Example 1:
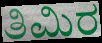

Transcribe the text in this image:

ತಿಮಿರ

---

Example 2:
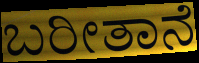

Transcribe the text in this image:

ಬರೀತಾನೆ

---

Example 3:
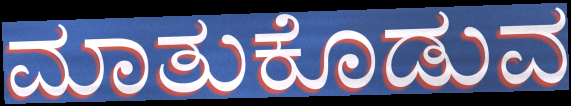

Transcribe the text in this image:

ಮಾತುಕೊಡುವ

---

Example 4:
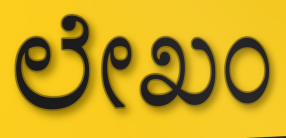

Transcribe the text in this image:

ಲೇಖಂ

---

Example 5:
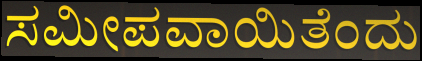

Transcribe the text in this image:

ಸಮೀಪವಾಯಿತೆಂದು